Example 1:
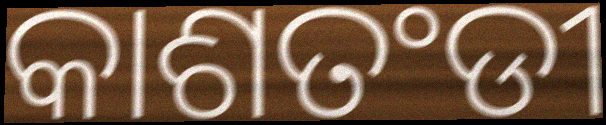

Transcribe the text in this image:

କାଶତଂଡୀ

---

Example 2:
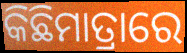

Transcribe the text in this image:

କିଛିମାତ୍ରାରେ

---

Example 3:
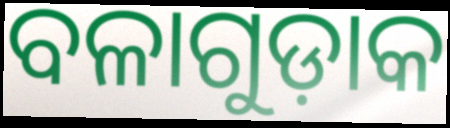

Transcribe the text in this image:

ବଳାଗୁଡ଼ାକ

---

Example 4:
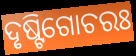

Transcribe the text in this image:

ଦୃଷ୍ଟିଗୋଚରଃ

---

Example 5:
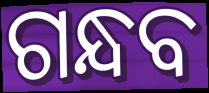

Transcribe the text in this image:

ଗନ୍ଧବ